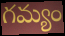
గమ్యం